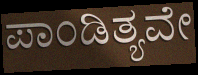
ಪಾಂಡಿತ್ಯವೇ